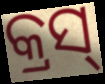
କ୍ରସ୍